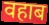
वहाब